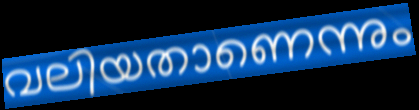
വലിയതാണെന്നും